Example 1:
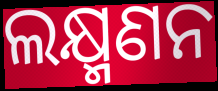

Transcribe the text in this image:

ଲକ୍ଷ୍ମଣନ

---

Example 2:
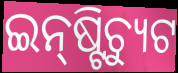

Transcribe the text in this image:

ଇନ୍‍ଷ୍ଟିଚ୍ୟୁଟ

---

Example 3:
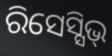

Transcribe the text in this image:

ରିସେସ୍ସିଭ୍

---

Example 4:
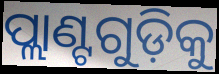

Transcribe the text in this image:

ପ୍ଲାଣ୍ଟଗୁଡ଼ିକୁ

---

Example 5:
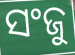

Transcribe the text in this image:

ସଂଜୁ